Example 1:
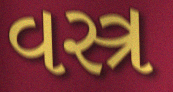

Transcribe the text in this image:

વસ્ત્ર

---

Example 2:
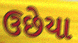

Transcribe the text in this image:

ઉછેયા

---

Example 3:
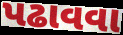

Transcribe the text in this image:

પઢાવવા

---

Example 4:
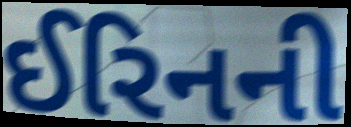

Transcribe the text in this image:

ઈરિનની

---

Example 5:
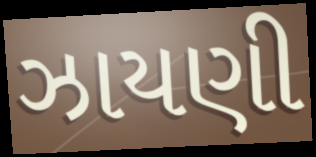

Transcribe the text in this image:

ઝાયણી